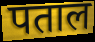
पताल